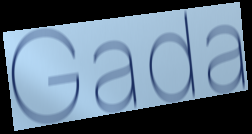
Gada